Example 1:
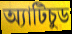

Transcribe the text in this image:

অ্যাটিচুড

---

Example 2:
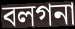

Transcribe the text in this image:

বলগনা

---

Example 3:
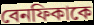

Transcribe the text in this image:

বেনফিকাকে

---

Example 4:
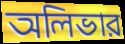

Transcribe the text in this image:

অলিভার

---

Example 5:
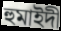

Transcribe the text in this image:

হুমাইদী